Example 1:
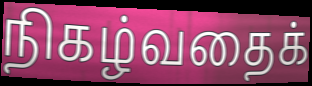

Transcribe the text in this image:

நிகழ்வதைக்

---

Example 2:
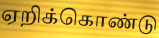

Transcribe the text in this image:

ஏறிக்கொண்டு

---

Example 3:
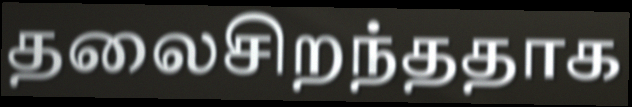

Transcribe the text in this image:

தலைசிறந்ததாக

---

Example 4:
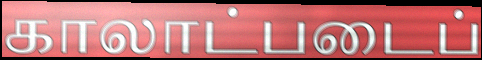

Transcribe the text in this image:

காலாட்படைப்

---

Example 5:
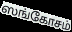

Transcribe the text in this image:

ஸங்கோசம்